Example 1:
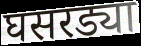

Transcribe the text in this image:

घसरड्या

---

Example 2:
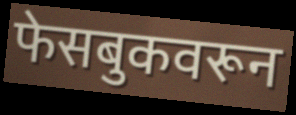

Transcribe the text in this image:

फेसबुकवरून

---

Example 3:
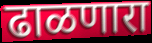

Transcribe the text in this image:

ढाळणारा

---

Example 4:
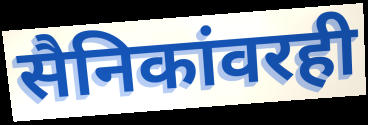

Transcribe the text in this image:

सैनिकांवरही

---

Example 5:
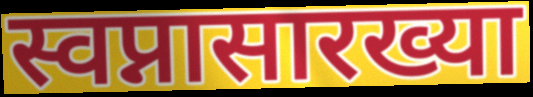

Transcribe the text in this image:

स्वप्नासारख्या